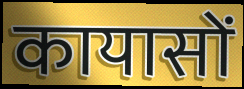
कायासों